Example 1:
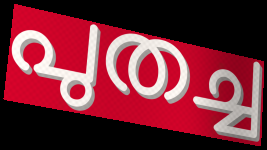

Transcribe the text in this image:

പുതച്ച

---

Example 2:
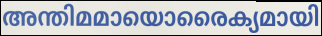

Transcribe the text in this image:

അന്തിമമായൊരൈക്യമായി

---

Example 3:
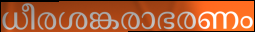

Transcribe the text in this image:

ധീരശങ്കരാഭരണം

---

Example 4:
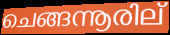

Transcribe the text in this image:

ചെങ്ങന്നൂരില്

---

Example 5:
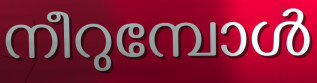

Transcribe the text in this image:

നീറുമ്പോൾ